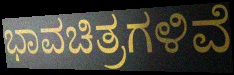
ಭಾವಚಿತ್ರಗಳಿವೆ